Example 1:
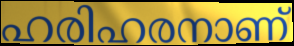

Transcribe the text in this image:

ഹരിഹരനാണ്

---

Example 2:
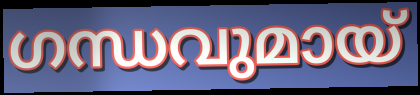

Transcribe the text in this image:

ഗന്ധവുമായ്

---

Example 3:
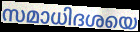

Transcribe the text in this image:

സമാധിദശയെ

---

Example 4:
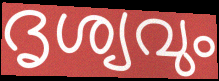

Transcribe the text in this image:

ദൃശ്യവും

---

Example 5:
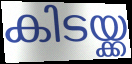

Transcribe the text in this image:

കിടയ്ക്ക